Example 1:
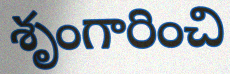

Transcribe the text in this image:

శృంగారించి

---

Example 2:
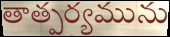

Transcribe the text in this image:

తాత్పర్యమును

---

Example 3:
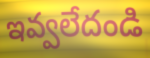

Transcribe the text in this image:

ఇవ్వలేదండి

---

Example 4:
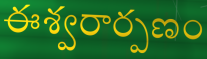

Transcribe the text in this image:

ఈశ్వరార్పణం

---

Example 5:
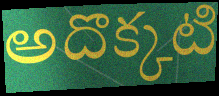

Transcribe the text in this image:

అదొక్కటి